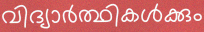
വിദ്യാർത്ഥികൾക്കും